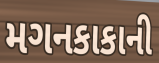
મગનકાકાની